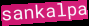
sankalpa